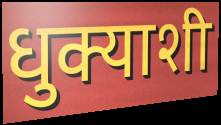
धुक्याशी